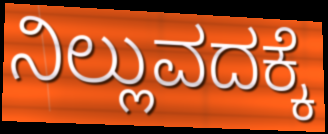
ನಿಲ್ಲುವದಕ್ಕೆ